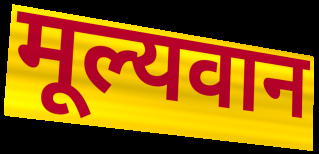
मूल्यवान